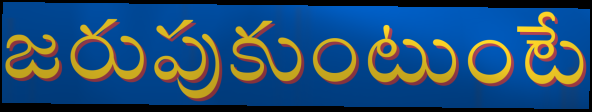
జరుపుకుంటుంటే